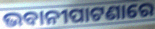
ଭବାନୀପାଟଣାରେ